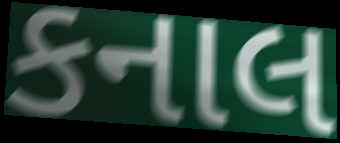
કનાલ